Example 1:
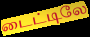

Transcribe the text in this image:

டைட்டிலே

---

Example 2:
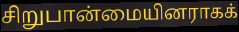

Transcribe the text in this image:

சிறுபான்மையினராகக்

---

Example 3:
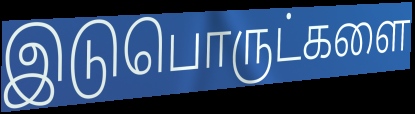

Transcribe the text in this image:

இடுபொருட்களை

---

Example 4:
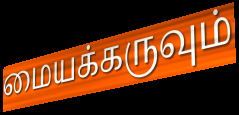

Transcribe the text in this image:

மையக்கருவும்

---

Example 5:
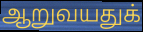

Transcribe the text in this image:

ஆறுவயதுக்